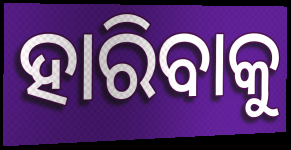
ହାରିବାକୁ